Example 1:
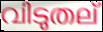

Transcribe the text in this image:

വിടുതല്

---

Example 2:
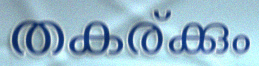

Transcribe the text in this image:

തകര്ക്കും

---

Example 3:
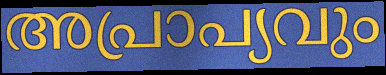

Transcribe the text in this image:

അപ്രാപ്യവും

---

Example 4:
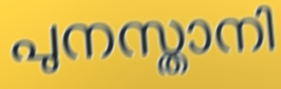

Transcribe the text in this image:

പുനസ്താനി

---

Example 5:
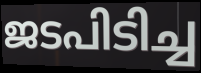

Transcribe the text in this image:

ജടപിടിച്ച